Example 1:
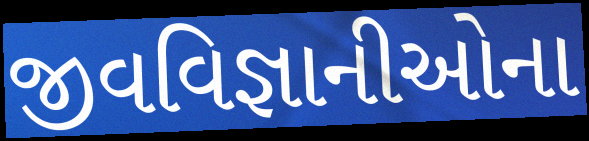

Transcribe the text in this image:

જીવવિજ્ઞાનીઓના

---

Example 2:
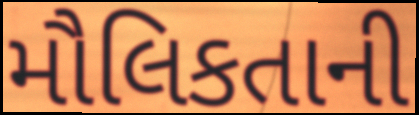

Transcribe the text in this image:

મૌલિકતાની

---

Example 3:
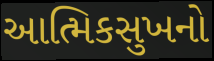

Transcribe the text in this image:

આત્મિકસુખનો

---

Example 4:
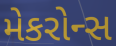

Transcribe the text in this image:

મેકરોન્સ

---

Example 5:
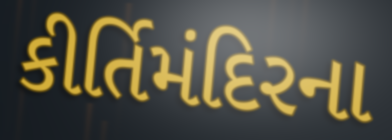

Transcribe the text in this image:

કીર્તિમંદિરના